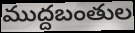
ముద్దబంతుల